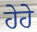
ਹੇਹੇ